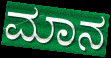
ಮಾನ